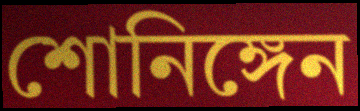
শোনিঙ্গেন